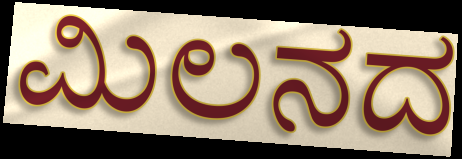
ಮಿಲನದ